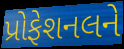
પ્રોફેશનલને